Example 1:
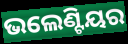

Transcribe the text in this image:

ଭଲେଣ୍ଟିୟର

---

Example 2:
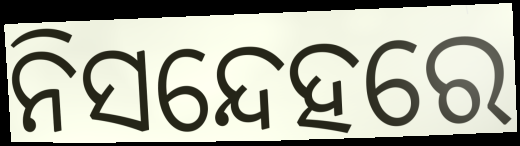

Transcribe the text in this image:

ନିସନ୍ଦେହରେ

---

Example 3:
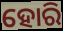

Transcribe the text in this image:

ହୋରି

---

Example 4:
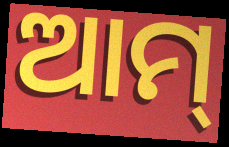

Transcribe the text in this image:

ଆମ୍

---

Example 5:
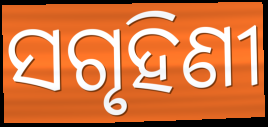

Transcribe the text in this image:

ସଗୃହିଣୀ